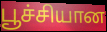
பூச்சியான